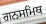
ਗਨਸਮਿਥ